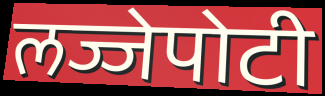
लज्जेपोटी